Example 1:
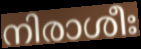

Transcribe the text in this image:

നിരാശീഃ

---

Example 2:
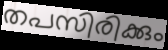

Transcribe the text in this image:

തപസിരിക്കും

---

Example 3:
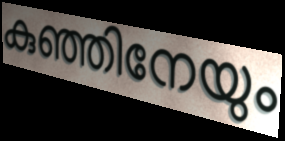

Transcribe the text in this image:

കുഞ്ഞിനേയും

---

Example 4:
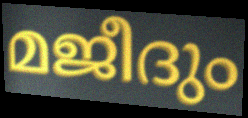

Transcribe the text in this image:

മജീദും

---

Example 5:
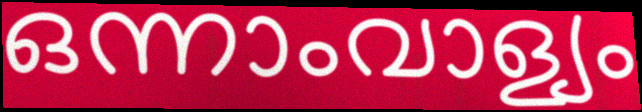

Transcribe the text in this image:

ഒന്നാംവാള്യം